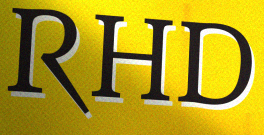
RHD